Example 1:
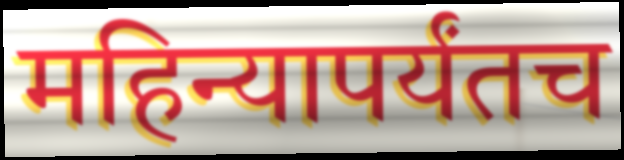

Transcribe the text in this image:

महिन्यापर्यंतच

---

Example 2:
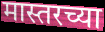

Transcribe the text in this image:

मास्तरच्या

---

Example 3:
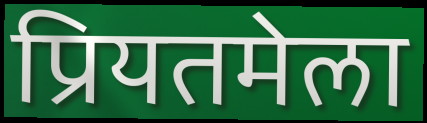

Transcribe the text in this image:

प्रियतमेला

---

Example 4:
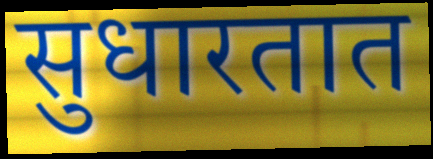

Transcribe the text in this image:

सुधारतात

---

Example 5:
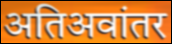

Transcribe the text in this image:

अतिअवांतर